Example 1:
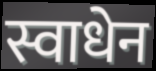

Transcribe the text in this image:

स्वाधेन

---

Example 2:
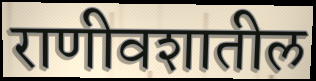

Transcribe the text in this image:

राणीवशातील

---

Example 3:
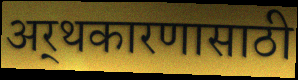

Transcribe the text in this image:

अर्थकारणासाठी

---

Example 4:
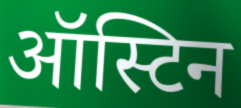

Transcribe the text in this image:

ऑस्टिन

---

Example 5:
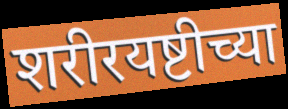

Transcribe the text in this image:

शरीरयष्टीच्या